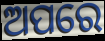
ଅପରେ